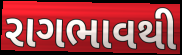
રાગભાવથી